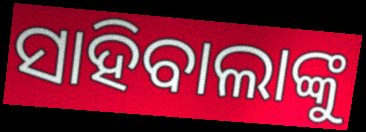
ସାହିବାଲାଙ୍କୁ